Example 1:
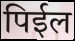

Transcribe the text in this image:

पिईल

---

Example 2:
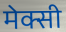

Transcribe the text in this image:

मेक्सी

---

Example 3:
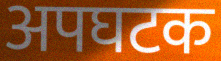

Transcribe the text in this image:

अपघटक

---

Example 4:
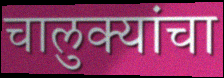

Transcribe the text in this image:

चालुक्यांचा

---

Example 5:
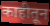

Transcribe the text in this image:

काहीतून